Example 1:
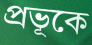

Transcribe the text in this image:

প্রভূকে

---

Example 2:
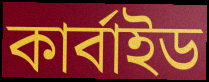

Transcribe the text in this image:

কার্বাইড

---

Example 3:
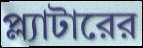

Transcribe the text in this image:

প্ল্যাটারের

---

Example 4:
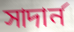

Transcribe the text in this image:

সাদার্ন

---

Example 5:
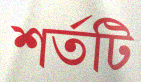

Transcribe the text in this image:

শর্তটি